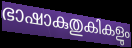
ഭാഷാകുതുകികളും